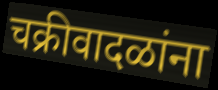
चक्रीवादळांना